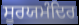
ਸੂਰਯਮੰਦਿਰ